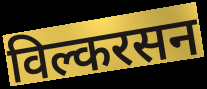
विल्करसन